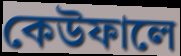
কেউফালে